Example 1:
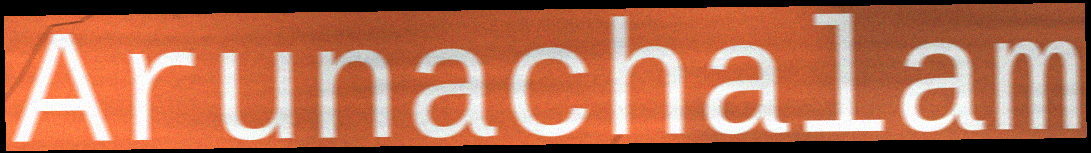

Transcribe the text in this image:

Arunachalam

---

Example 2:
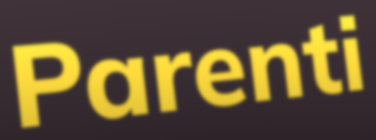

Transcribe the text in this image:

Parenti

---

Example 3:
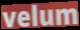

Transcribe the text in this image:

velum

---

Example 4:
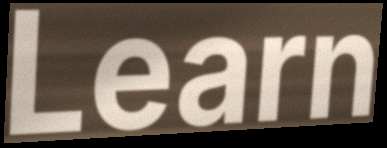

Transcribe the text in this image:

Learn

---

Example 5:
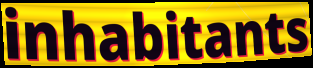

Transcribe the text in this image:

inhabitants